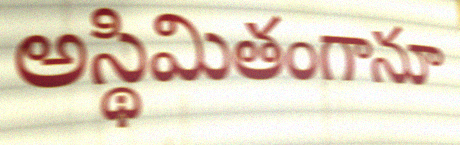
అస్థిమితంగానూ